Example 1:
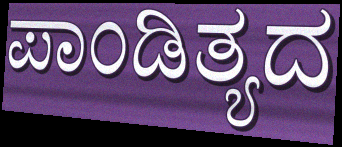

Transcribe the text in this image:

ಪಾಂಡಿತ್ಯದ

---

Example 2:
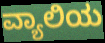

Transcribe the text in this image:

ವ್ಯಾಲಿಯ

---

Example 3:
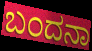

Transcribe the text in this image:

ಬಂದನಾ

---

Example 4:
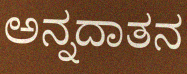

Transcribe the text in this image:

ಅನ್ನದಾತನ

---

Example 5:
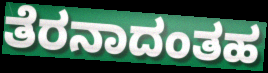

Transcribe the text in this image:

ತೆರನಾದಂತಹ